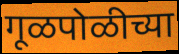
गूळपोळीच्या